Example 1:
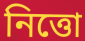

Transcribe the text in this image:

নিত্তো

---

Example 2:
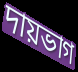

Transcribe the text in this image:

দায়ভাগ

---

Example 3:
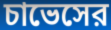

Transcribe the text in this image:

চাভেসের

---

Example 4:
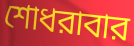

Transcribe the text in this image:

শোধরাবার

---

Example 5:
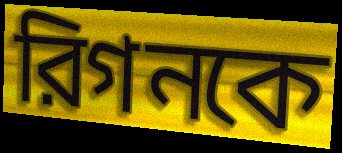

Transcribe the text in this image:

রিগনকে